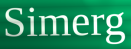
Simerg